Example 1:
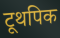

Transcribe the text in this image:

टूथपिक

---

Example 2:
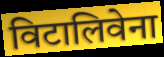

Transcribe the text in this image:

विटालिवेना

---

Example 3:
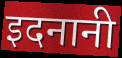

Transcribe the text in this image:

इदनानी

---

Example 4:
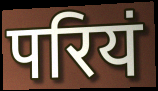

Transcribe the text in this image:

परियं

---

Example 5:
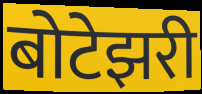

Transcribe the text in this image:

बोटेझरी